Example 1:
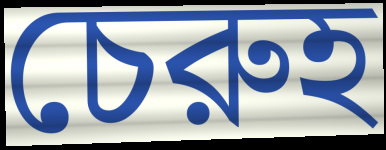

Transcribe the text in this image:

চেরুহ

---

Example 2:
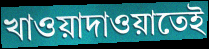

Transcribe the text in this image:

খাওয়াদাওয়াতেই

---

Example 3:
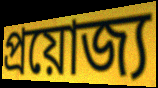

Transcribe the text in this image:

প্রয়োজ্য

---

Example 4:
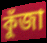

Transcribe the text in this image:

কুঁজা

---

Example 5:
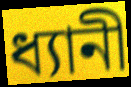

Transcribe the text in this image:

ধ্যানী